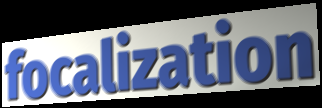
focalization